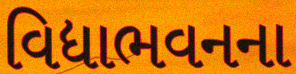
વિદ્યાભવનના